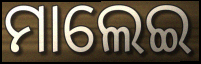
ମାଲେଇ